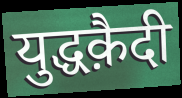
युद्धक़ैदी